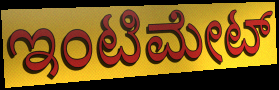
ಇಂಟಿಮೇಟ್